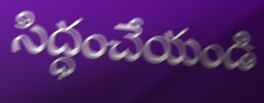
సిద్ధంచేయండి